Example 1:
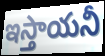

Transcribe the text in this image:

ఇస్తాయనీ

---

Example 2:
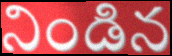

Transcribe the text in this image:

నిండిన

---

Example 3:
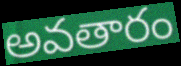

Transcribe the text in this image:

అవతారం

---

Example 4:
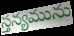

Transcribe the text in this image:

స్తన్యమును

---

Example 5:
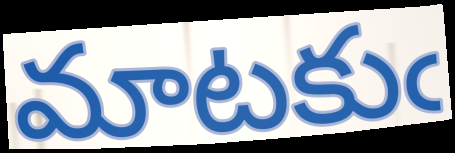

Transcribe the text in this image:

మాటకుఁ